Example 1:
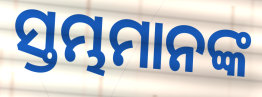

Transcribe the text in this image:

ସ୍ତମ୍ଭମାନଙ୍କ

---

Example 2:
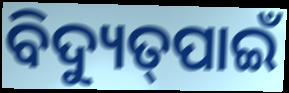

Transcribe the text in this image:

ବିଦ୍ୟୁତ୍‌ପାଇଁ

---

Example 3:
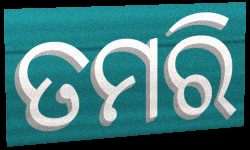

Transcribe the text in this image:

ତମରି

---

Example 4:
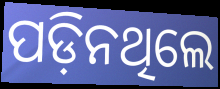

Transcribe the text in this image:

ପଡ଼ିନଥିଲେ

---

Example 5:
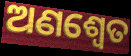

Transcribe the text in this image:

ଅଣଶ୍ୱେତ